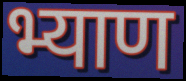
भ्याण